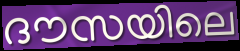
ദൗസയിലെ